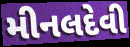
મીનલદેવી